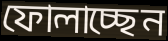
ফোলাচ্ছেন